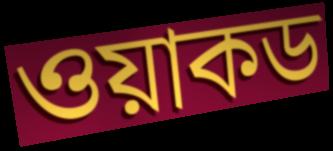
ওয়াকড